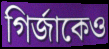
গির্জাকেও